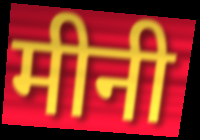
मीनी